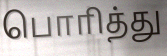
பொரித்து